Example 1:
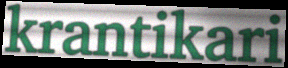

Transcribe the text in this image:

krantikari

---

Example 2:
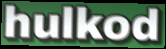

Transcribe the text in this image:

hulkod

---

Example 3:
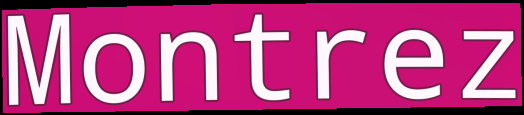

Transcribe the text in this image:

Montrez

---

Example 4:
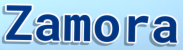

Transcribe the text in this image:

Zamora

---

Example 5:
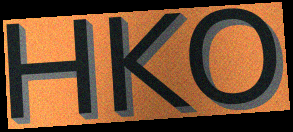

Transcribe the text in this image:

HKO